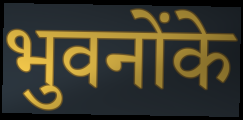
भुवनोंके